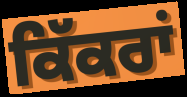
ਕਿੱਕਰਾਂ